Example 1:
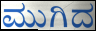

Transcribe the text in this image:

ಮುಗಿದ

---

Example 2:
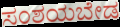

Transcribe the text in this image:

ಸಂಶಯಬೇಡ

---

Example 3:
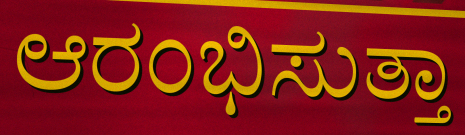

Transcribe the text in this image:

ಆರಂಭಿಸುತ್ತಾ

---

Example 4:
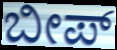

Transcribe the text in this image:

ಬೀಪ್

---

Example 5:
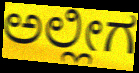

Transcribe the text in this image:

ಅಲ್ಲೀಗ